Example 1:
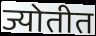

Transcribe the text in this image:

ज्योतीत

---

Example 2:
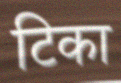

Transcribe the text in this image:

टिका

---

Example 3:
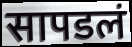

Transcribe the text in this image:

सापडलं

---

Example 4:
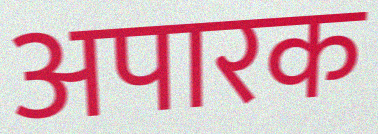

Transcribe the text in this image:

अपारक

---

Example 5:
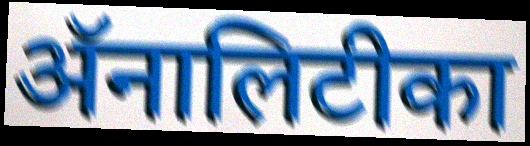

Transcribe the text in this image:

ॲनालिटीका